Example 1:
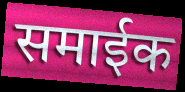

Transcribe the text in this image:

समाईक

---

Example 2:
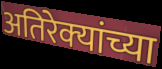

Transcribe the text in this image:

अतिरेक्‍यांच्या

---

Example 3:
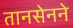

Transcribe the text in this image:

तानसेनने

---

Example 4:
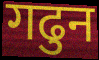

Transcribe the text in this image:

गढुन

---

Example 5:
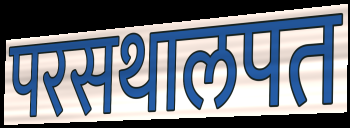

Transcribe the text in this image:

परसथालपत